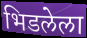
भिडलेला